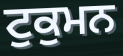
ਟੁਕੁਮਨ